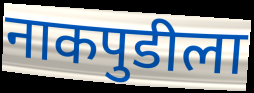
नाकपुडीला